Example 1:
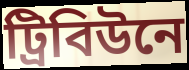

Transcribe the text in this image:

ট্রিবিউনে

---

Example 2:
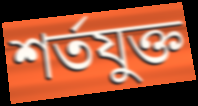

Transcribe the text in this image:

শর্তযুক্ত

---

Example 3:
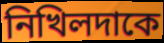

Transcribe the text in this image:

নিখিলদাকে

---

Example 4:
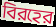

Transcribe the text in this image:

বিরহের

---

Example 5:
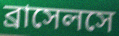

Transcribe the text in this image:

ব্রাসেলসে